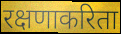
रक्षणाकरिता